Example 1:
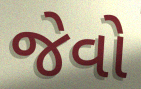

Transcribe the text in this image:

જેવો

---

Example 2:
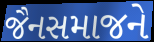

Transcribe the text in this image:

જૈનસમાજને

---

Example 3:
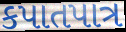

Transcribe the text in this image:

કપાતપાત્ર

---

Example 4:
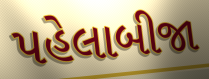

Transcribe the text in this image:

પહેલાબીજા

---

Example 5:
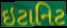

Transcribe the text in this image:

ઇટાનિટ